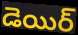
డెయిర్